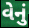
વેનું